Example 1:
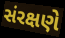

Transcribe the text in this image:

સંરક્ષણે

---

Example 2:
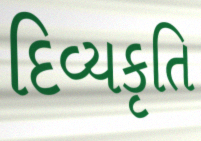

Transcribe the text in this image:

દિવ્યકૃતિ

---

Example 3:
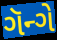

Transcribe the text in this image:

ગૅન્ગે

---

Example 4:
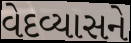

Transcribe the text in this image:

વેદવ્યાસને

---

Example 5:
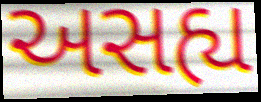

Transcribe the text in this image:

અસહ્ય